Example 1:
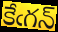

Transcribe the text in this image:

కేఁగన్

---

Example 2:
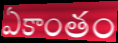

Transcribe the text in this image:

ఏకాంతం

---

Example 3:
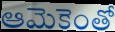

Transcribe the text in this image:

ఆమెకెంతో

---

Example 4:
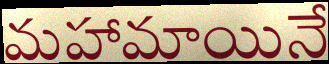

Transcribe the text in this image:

మహామాయినే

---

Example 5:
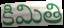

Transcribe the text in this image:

కిమితి